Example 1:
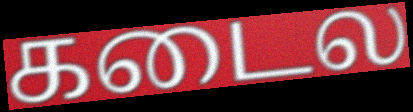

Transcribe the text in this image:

கடைல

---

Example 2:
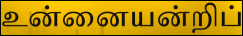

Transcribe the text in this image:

உன்னையன்றிப்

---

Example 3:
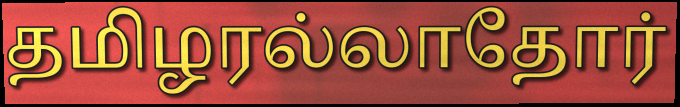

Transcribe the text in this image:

தமிழரல்லாதோர்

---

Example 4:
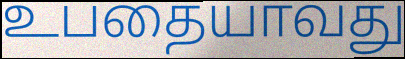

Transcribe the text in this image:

உபதையாவது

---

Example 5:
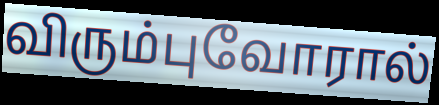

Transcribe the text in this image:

விரும்புவோரால்